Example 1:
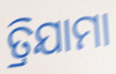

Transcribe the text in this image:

ତ୍ରିଯାମା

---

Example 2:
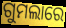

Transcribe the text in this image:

ଗୁମଲାରେ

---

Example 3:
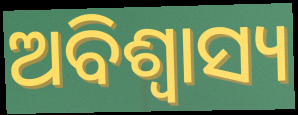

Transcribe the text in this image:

ଅବିଶ୍ଵାସ୍ୟ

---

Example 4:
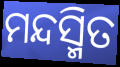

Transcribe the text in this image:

ମନ୍ଦସ୍ମିତ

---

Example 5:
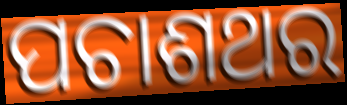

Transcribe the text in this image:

ପଚାଶଥର